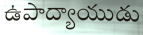
ఉపాద్యాయుడు